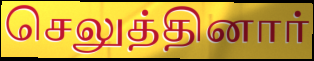
செலுத்தினார்